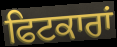
ਫਿਟਕਾਰਾਂ